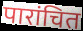
पारांचित